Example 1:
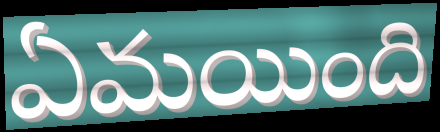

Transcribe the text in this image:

ఏమయింది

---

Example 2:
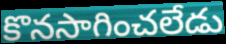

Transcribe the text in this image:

కొనసాగించలేడు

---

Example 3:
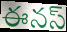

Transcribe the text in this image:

ఈనస్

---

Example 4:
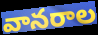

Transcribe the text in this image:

వానరాల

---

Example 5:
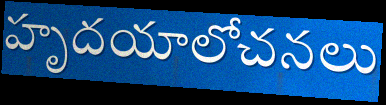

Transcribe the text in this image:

హృదయాలోచనలు